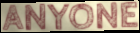
ANYONE